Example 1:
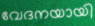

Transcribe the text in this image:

വേദനയായി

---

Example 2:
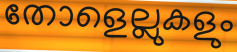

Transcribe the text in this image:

തോളെല്ലുകളും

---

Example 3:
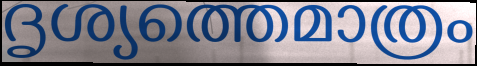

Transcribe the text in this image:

ദൃശ്യത്തെമാത്രം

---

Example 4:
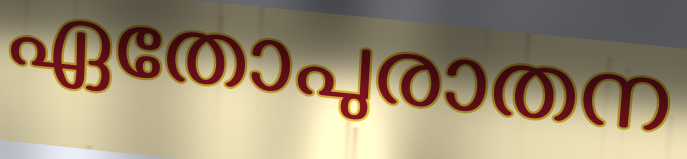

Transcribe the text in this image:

ഏതോപുരാതന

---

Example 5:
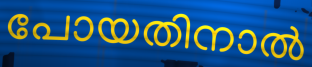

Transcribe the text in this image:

പോയതിനാൽ